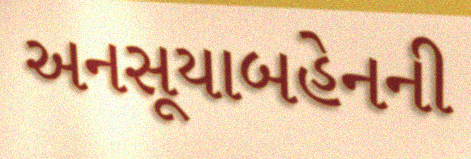
અનસૂયાબહેનની